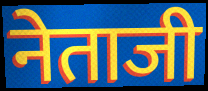
नेताजी